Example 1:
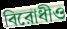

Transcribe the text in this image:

বিরোধীও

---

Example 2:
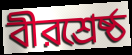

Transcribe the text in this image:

বীরশ্রেষ্ঠ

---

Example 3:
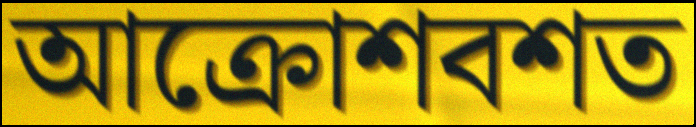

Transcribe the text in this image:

আক্রোশবশত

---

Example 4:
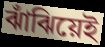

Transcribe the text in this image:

ঝাঁঝিয়েই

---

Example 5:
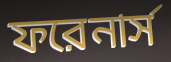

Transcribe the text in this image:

ফরেনার্স